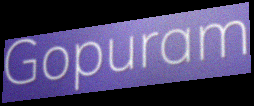
Gopuram